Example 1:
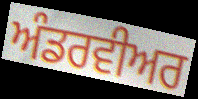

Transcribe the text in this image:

ਅੰਡਰਵੀਅਰ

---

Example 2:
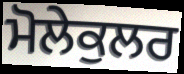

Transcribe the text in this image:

ਮੋਲੇਕੁਲਰ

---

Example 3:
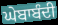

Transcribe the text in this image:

ਘੇਬਾਬੰਦੀ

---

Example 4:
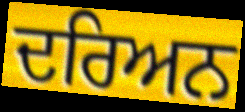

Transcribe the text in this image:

ਦਰਿਅਨ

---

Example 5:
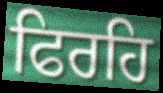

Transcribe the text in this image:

ਫਿਰਹਿ